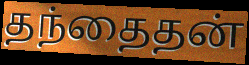
தந்தைதன்